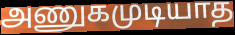
அணுகமுடியாத